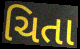
ચિતા